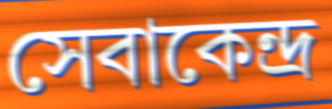
সেবাকেন্দ্র